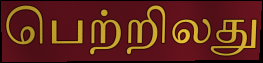
பெற்றிலது